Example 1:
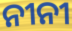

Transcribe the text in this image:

ନୀନୀ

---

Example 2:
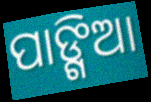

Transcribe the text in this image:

ପାଙ୍ଗିଆ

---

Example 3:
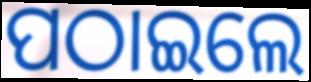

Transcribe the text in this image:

ପଠାଇଲେ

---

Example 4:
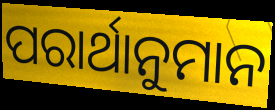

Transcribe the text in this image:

ପରାର୍ଥାନୁମାନ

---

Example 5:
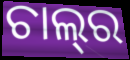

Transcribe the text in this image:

ଚାଲ୍‌ର